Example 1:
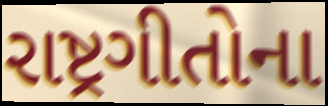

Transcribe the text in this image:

રાષ્ટ્રગીતોના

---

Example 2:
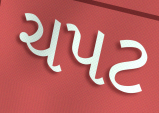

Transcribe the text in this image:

ચપટ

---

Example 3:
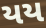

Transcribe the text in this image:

યય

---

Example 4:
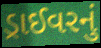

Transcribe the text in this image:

ડ્રાઈવરનું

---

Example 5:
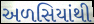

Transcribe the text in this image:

અળસિયાંથી